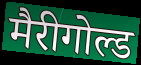
मैरीगोल्ड